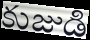
కుజుడి